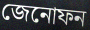
জেনোফন